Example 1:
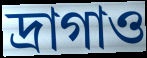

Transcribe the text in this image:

দ্রাগাও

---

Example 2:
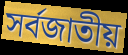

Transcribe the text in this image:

সর্বজাতীয়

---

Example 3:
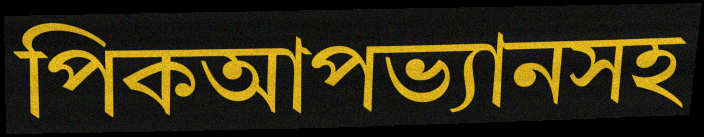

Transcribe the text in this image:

পিকআপভ্যানসহ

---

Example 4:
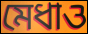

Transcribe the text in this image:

মেধাও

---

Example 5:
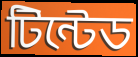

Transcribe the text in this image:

টিন্টেড